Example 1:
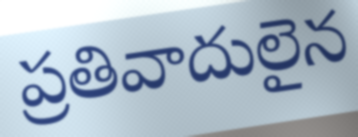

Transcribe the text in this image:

ప్రతివాదులైన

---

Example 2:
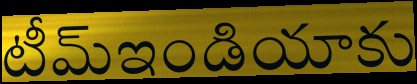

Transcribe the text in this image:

టీమ్ఇండియాకు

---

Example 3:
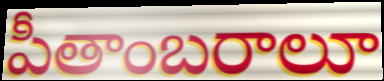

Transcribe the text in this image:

పీతాంబరాలూ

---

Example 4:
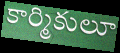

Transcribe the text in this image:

కార్మికులూ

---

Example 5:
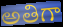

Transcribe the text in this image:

అతిగా